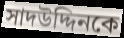
সাদউদ্দিনকে